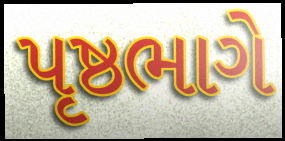
પૃષ્ઠભાગે